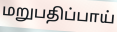
மறுபதிப்பாய்